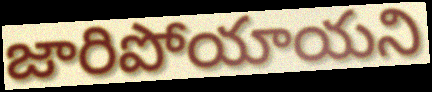
జారిపోయాయని